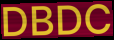
DBDC